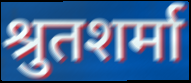
श्रुतशर्मा